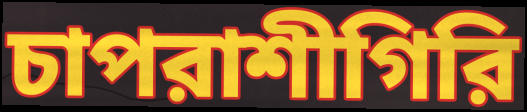
চাপরাশীগিরি